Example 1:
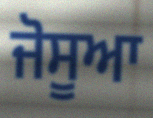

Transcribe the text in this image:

ਜੋਸੂਆ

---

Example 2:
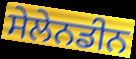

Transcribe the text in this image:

ਸੇਲੇਨਡੀਨ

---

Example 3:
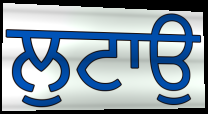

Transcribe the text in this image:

ਲੁਟਾਉ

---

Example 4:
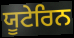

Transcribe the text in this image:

ਯੂਟੇਰਿਨ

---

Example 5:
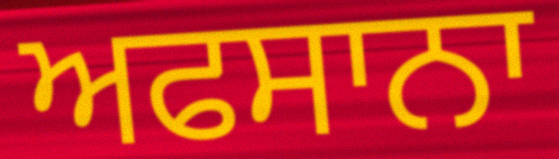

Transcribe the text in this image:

ਅਫਸਾਨਾ